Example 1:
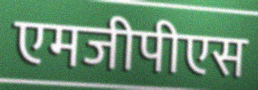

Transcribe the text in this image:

एमजीपीएस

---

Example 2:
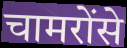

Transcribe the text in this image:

चामरोंसे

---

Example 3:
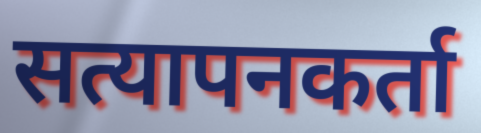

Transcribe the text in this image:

सत्यापनकर्ता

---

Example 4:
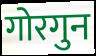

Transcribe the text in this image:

गोरगुन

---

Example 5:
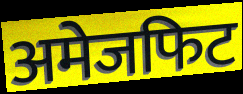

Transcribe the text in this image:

अमेजफिट